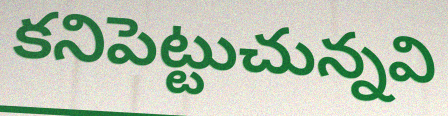
కనిపెట్టుచున్నవి